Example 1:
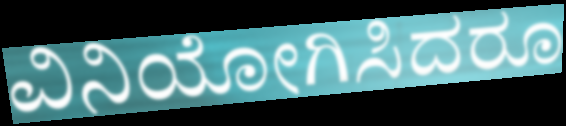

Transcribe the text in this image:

ವಿನಿಯೋಗಿಸಿದರೂ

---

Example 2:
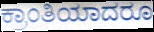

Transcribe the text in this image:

ಕ್ರಾಂತಿಯಾದರೂ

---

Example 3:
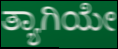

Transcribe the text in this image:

ತ್ಯಾಗಿಯೇ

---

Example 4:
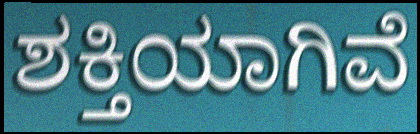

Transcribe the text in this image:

ಶಕ್ತಿಯಾಗಿವೆ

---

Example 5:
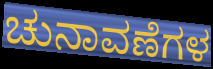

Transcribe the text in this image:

ಚುನಾವಣೆಗಳ